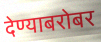
देण्याबरोबर